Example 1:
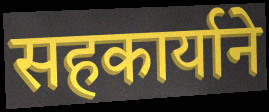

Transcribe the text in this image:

सहकार्याने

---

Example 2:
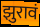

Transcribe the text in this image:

झुरावं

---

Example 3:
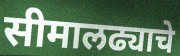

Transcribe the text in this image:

सीमालढ्याचे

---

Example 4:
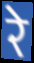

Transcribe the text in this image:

रे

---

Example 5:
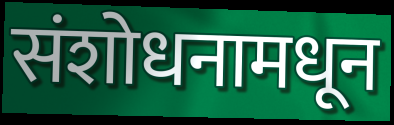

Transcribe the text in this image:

संशोधनामधून